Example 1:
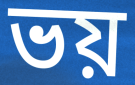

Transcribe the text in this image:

ভয়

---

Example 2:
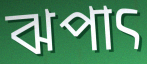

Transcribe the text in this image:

ঝপাৎ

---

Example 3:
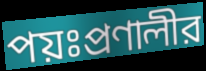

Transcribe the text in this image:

পয়ঃপ্রণালীর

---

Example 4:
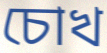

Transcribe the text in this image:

চোখ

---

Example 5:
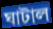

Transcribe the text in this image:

ঘাটাল